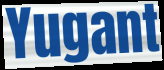
Yugant